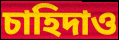
চাহিদাও